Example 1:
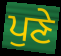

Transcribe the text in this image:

ਪੁਣੇ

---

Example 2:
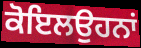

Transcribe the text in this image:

ਕੋਇਲਉਹਨਾਂ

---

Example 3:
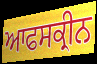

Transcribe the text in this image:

ਆਫਸਕ੍ਰੀਨ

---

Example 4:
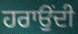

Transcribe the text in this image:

ਹਰਾਉਂਦੀ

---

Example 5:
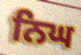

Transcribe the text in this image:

ਨਿਘ